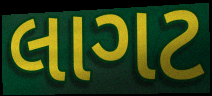
લાગટ